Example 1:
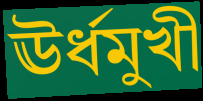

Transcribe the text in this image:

ঊর্ধমুখী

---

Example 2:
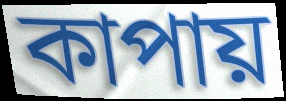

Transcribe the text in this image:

কাপায়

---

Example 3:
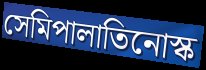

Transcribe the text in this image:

সেমিপালাতিনোস্ক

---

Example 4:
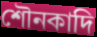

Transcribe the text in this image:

শৌনকাদি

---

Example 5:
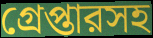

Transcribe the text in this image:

গ্রেপ্তারসহ